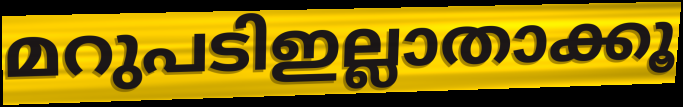
മറുപടിഇല്ലാതാക്കൂ